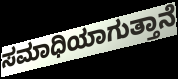
ಸಮಾಧಿಯಾಗುತ್ತಾನೆ